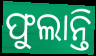
ଫୁଲାନ୍ତି